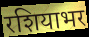
रशियाभर